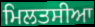
ਮਿਲਤਸੀਆ